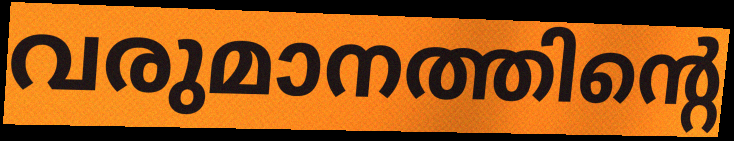
വരുമാനത്തിന്റെ